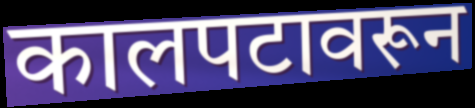
कालपटावरून